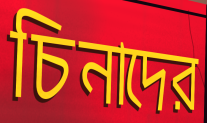
চিনাদের